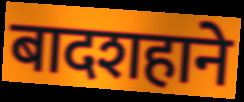
बादशहाने